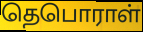
தெபொராள்